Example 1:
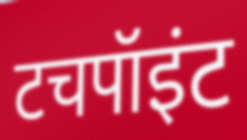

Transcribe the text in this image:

टचपॉइंट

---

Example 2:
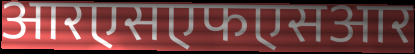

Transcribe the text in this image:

आरएसएफएसआर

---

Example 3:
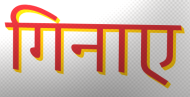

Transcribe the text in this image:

गिनाए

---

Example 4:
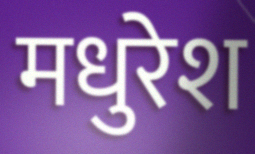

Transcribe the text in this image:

मधुरेश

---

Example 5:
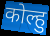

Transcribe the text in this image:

कोल्हु